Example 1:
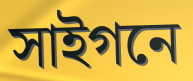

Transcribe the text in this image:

সাইগনে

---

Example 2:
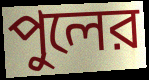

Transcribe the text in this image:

পুলের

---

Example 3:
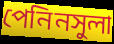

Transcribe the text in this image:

পেনিনসুলা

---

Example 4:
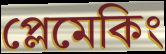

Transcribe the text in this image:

প্লেমেকিং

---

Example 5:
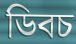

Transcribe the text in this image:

ডিবচ